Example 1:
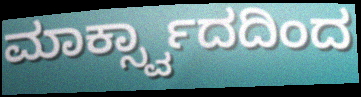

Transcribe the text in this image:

ಮಾರ್ಕ್ಸ್ವಾದದಿಂದ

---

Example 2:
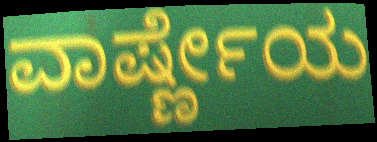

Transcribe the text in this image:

ವಾರ್ಷ್ಣೇಯ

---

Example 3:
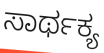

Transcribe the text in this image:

ಸಾರ್ಥಕ್ಯ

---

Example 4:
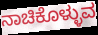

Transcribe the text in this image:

ನಾಚಿಕೊಳ್ಳುವ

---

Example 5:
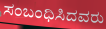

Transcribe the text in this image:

ಸಂಬಂಧಿಸಿದವರು